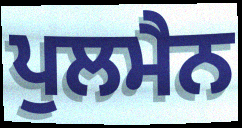
ਪੁਲਮੈਨ